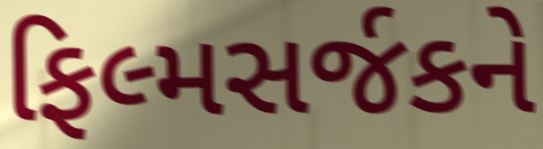
ફિલ્મસર્જકને